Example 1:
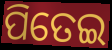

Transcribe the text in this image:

ପିତେଇ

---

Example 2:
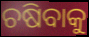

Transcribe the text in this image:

ଚଷିବାକୁ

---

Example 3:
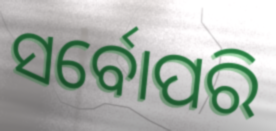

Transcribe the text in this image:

ସର୍ବୋପରି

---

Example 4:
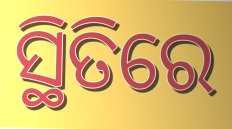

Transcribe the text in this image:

ସ୍ଥିତିରେ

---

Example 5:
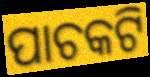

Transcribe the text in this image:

ପାଚକଟି